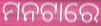
ମନଟାରେ